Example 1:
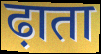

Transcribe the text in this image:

ढ़ाता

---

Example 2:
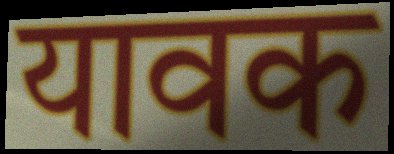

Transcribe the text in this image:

यावक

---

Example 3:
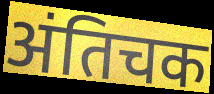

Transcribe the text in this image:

अंतिचक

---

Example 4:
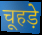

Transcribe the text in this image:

चूहड़े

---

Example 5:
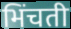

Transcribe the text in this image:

भिंचती